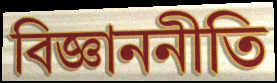
বিজ্ঞাননীতি